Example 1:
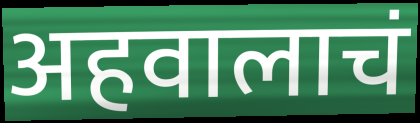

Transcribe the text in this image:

अहवालाचं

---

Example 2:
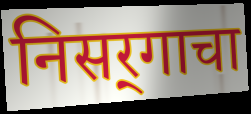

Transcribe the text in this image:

निसर्गाचा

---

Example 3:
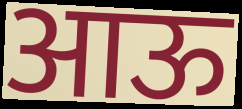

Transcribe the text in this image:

आऊ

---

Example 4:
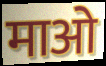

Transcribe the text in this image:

माओ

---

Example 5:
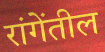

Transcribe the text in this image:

रांगेंतील